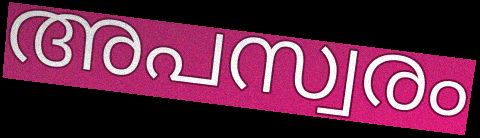
അപസ്വരം